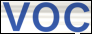
voc